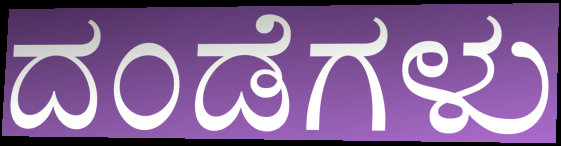
ದಂಡೆಗಳು